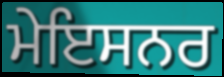
ਮੇਇਸਨਰ